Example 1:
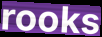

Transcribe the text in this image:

rooks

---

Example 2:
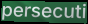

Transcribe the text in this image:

persecuti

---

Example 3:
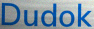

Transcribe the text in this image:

Dudok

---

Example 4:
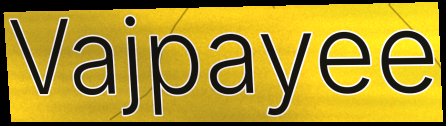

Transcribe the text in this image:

Vajpayee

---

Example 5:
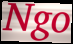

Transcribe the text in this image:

Ngo